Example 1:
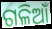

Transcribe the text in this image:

ଗଳିଆଁ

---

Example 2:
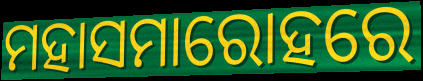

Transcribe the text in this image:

ମହାସମାରୋହରେ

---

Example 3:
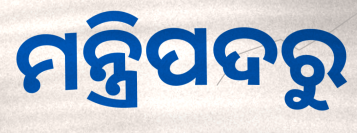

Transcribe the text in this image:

ମନ୍ତ୍ରିପଦରୁ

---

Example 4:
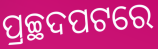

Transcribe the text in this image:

ପ୍ରଚ୍ଛଦପଟରେ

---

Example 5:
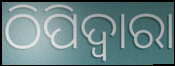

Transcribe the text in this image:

ଠିପିଦ୍ଵାରା